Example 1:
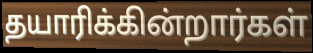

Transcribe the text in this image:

தயாரிக்கின்றார்கள்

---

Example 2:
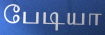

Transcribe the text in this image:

பேடியா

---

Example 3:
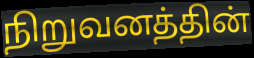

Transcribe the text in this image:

நிறுவனத்தின்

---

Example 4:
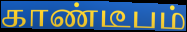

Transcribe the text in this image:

காண்டீபம்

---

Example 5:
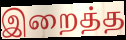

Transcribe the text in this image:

இறைத்த